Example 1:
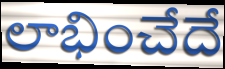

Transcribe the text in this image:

లాభించేదే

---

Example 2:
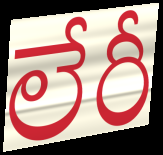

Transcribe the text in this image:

లేరీ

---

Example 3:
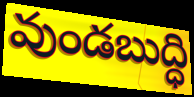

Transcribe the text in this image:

వుండబుద్ధి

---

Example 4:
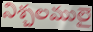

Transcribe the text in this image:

నిశ్చలములై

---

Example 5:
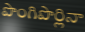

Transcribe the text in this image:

పొంగిపొర్లినా